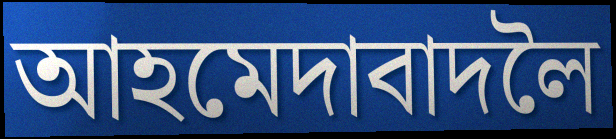
আহমেদাবাদলৈ